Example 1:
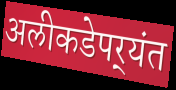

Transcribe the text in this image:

अलीकडेपर्यंत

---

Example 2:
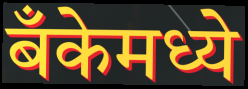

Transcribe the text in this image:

बँकेमध्ये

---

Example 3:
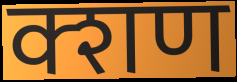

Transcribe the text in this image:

क्शण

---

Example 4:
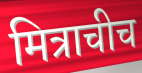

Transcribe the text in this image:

मित्राचीच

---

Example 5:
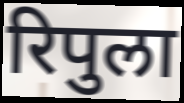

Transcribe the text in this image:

रिपुला